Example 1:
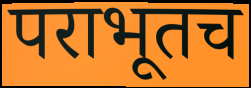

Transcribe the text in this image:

पराभूतच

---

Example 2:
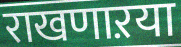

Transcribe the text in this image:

राखणाऱया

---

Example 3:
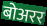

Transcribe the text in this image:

बोअरर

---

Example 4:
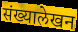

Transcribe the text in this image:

संख्यालेखन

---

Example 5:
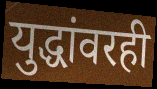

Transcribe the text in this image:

युद्धांवरही